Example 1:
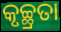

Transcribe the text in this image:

କୃଚ୍ଛ୍ରତା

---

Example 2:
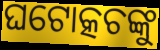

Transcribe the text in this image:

ଘଟୋତ୍କଚଙ୍କୁ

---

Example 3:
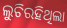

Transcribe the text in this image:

ଲୁଚିରହିଥିଲା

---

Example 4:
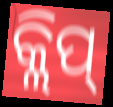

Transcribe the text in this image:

କ୍ଲିପ୍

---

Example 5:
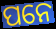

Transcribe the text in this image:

ପନେ